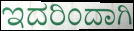
ಇದರಿಂದಾಗಿ